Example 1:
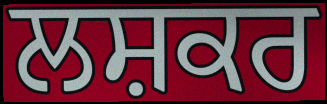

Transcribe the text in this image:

ਲਸ਼ਕਰ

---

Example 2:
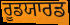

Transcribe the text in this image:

ਰੂਡਯਾਰਡ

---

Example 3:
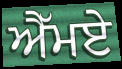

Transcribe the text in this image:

ਐੱਮਏ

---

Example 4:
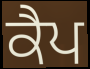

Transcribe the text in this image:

ਕੈਪ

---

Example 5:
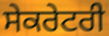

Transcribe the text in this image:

ਸੇਕਰੇਟਰੀ